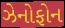
ઝેનોફોન